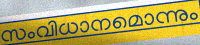
സംവിധാനമൊന്നും